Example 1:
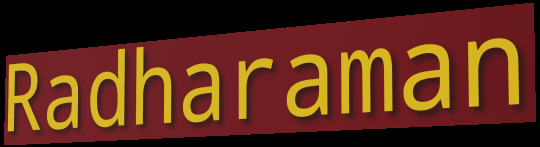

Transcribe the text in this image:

Radharaman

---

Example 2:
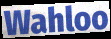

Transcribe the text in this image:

Wahloo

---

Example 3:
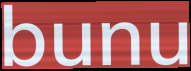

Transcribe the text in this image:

bunu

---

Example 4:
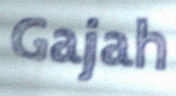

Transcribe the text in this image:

Gajah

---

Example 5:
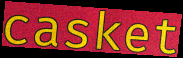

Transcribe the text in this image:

casket